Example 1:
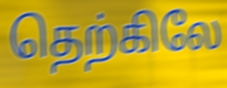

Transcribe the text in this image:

தெற்கிலே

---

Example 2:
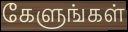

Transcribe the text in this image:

கேளுங்கள்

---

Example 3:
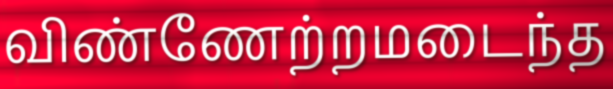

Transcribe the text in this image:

விண்ணேற்றமடைந்த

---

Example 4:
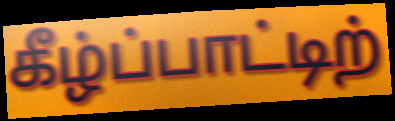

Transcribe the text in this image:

கீழ்ப்பாட்டிற்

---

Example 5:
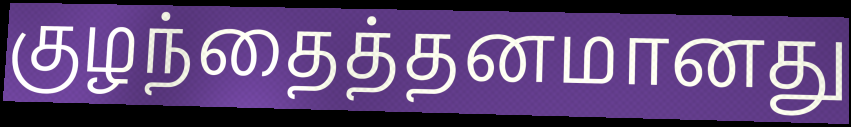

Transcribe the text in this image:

குழந்தைத்தனமானது